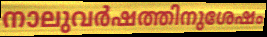
നാലുവർഷത്തിനുശേഷം